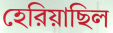
হেরিয়াছিল